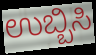
ಉಬ್ಬಿಸಿ